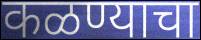
कळण्याचा